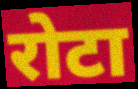
रोटा